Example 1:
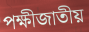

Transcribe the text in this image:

পক্ষীজাতীয়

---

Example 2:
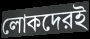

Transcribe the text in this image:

লোকদেরই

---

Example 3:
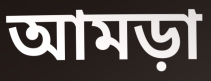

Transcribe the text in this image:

আমড়া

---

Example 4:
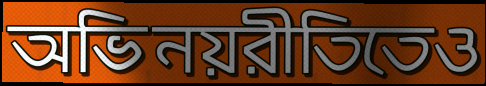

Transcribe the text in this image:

অভিনয়রীতিতেও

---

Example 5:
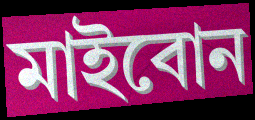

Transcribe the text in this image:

মাইবোন